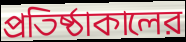
প্রতিষ্ঠাকালের